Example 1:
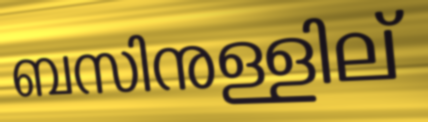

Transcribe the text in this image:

ബസിനുള്ളില്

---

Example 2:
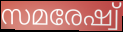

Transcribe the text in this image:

സമരേഷ്വ്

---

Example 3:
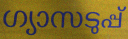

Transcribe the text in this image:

ഗ്യാസടുപ്പ്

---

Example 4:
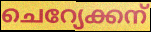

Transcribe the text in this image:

ചെറ്യേക്കന്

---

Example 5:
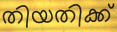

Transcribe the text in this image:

തിയതിക്ക്